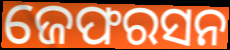
ଜେଫରସନ